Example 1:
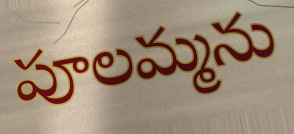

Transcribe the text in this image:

పూలమ్మను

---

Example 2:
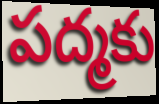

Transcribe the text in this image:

పద్మకు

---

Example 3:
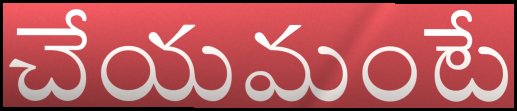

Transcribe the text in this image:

చేయమంటే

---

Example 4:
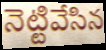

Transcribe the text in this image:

నెట్టివేసిన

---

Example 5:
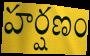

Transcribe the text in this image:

హర్షణం